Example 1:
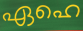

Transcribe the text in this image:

ഏഹെ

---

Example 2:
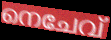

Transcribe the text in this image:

നെചേവ്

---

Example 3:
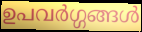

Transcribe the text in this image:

ഉപവർഗ്ഗങ്ങൾ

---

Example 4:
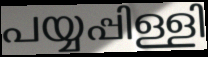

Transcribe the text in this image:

പയ്യപ്പിള്ളി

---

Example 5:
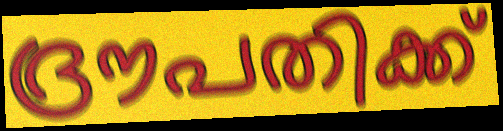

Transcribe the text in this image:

ദ്രൗപതിക്ക്